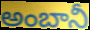
అంబానీ